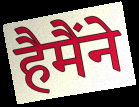
हैमैंने